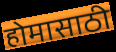
होमासाठी